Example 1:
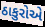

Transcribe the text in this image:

ઠાકુરોએ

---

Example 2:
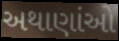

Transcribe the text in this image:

અથાણાંઓ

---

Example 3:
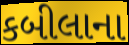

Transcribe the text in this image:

કબીલાના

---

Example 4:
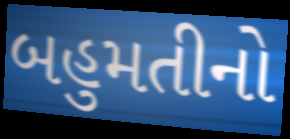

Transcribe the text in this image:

બહુમતીનો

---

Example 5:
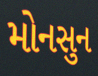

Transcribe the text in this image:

મોનસુન